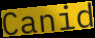
Canid